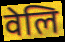
वेलि